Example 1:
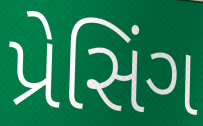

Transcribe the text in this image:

પ્રેસિંગ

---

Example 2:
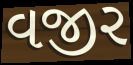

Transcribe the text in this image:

વજીર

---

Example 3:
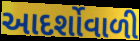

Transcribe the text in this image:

આદર્શોવાળી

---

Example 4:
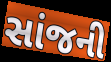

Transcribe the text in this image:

સાંજની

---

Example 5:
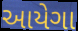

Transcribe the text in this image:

આયેગા